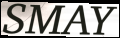
SMAY